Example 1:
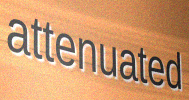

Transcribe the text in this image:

attenuated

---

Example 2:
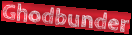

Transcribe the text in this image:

Ghodbunder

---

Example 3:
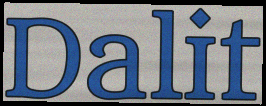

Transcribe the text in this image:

Dalit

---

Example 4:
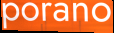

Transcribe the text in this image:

porano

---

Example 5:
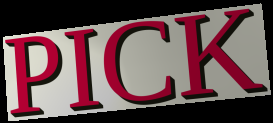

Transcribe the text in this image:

PICK